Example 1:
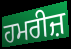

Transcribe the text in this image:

ਹਮਰੀਜ਼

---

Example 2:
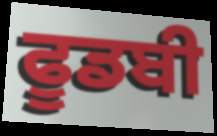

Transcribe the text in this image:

ਫੂਡਬੀ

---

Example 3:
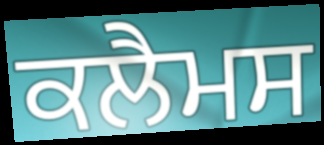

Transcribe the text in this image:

ਕਲੈਮਸ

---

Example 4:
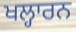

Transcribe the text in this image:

ਖਲ੍ਹਾਰਨ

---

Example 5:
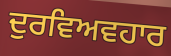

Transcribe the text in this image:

ਦੁਰਵਿਅਵਹਾਰ